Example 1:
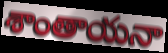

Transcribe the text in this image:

శాంతాయనా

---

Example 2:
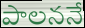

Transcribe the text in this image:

పాలననే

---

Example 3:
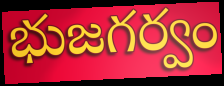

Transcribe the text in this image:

భుజగర్వం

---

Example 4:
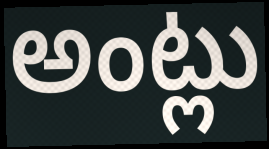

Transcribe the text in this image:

అంట్లు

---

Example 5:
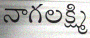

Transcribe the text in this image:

నాగలక్ష్మి